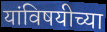
यांविषयीच्या